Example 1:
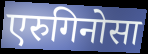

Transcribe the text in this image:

एरुगिनोसा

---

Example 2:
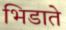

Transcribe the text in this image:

भिडाते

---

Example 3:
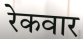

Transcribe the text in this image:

रेकवार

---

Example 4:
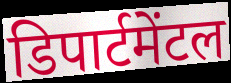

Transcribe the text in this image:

डिपार्टमेंटल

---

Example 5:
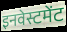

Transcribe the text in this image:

इनवेस्टमेंट